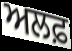
ਅਲਫ਼